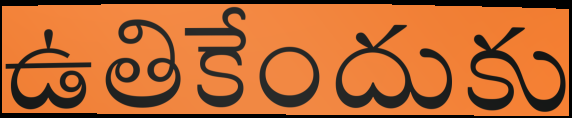
ఉతికేందుకు